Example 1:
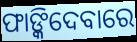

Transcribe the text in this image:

ଫାଙ୍କିଦେବାରେ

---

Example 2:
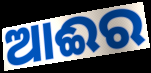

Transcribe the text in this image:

ଆଈର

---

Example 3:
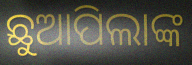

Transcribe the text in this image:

ଛୁଆପିଲାଙ୍କ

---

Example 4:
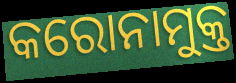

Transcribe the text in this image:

କରୋନାମୁକ୍ତ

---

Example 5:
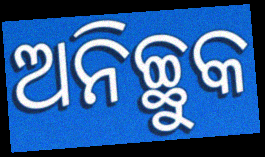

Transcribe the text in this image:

ଅନିଚ୍ଛୁକ